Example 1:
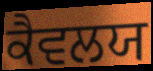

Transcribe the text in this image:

ਕੈਵਲਯ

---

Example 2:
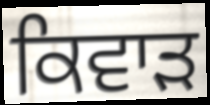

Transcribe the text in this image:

ਕਿਵਾੜ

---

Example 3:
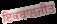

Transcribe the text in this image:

ਇਕਬਾਲਜੀਤ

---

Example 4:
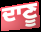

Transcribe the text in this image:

ਦਾਣੂ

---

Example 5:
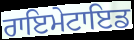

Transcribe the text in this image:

ਰਾਇਮੇਟਾਇਡ